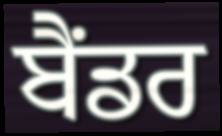
ਬੈਂਡਰ